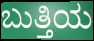
ಬುತ್ತಿಯ